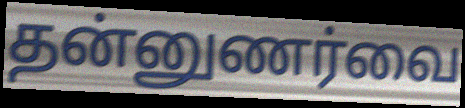
தன்னுணர்வை